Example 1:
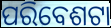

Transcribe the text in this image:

ପରିବେଶଟା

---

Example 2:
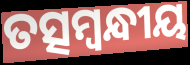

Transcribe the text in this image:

ତତ୍ସମ୍ବନ୍ଧୀୟ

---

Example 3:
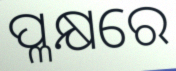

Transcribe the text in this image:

ପ୍ଳକ୍ଷରେ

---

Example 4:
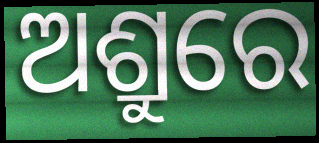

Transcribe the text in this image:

ଅଶ୍ରୁରେ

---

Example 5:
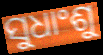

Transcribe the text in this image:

ସୁଧାଂଶୁ